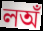
লঅঁ